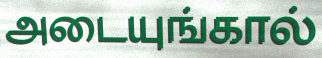
அடையுங்கால்